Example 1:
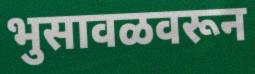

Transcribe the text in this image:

भुसावळवरून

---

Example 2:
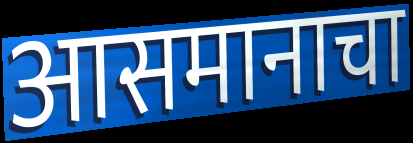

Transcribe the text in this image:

आसमानाचा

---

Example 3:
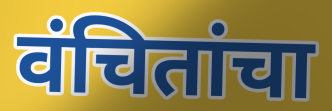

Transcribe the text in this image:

वंचितांचा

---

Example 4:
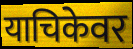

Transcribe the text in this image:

याचिकेवर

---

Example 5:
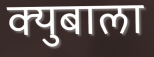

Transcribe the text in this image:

क्युबाला